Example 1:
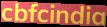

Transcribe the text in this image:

cbfcindia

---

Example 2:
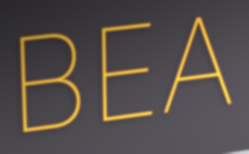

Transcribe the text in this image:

BEA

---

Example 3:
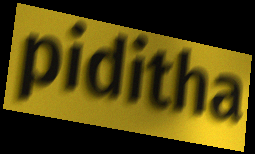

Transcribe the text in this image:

piditha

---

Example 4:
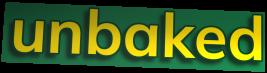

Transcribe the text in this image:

unbaked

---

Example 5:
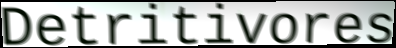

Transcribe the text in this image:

Detritivores